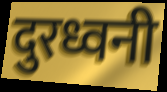
दुरध्वनी